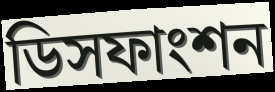
ডিসফাংশন